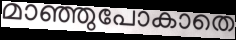
മാഞ്ഞുപോകാതെ